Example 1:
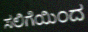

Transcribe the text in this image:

ಸಲಿಗೆಯಿಂದ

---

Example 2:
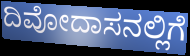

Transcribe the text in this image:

ದಿವೋದಾಸನಲ್ಲಿಗೆ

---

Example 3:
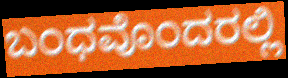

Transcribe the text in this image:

ಬಂಧವೊಂದರಲ್ಲಿ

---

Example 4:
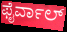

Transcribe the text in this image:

ಫೈರ್ವಾಲ್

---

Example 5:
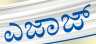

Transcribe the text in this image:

ಎಜಾಜ್